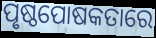
ପୃଷ୍ଠପୋଷକତାରେ